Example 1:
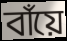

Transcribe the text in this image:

বাঁয়ে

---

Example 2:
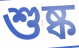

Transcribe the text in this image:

শুষ্ক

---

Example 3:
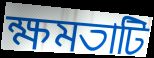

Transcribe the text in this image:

ক্ষমতাটি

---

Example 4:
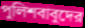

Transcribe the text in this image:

পুলিশবাবুদের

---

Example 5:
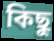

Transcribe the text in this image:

কিছু